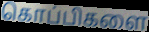
கொப்பிகளை